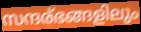
സന്ദര്ഭങ്ങളിലും